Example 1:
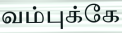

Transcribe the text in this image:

வம்புக்கே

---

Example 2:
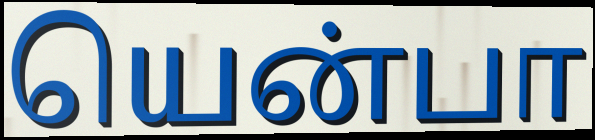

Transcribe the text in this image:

யென்பா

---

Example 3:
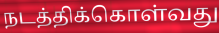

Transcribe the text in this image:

நடத்திக்கொள்வது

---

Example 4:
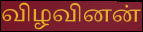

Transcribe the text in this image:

விழவினன்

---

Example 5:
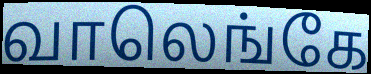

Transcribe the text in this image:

வாலெங்கே